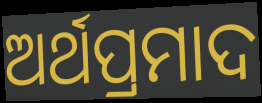
ଅର୍ଥପ୍ରମାଦ